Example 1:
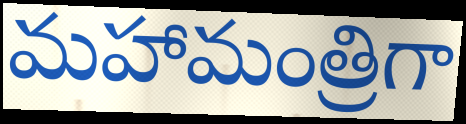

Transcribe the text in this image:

మహామంత్రిగా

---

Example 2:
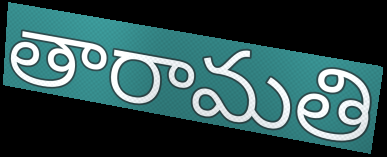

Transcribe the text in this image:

తారామతి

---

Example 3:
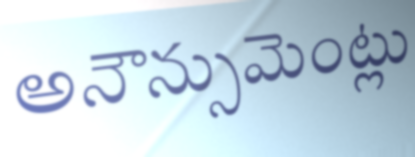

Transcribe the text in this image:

అనౌన్సుమెంట్లు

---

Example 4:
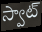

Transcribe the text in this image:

స్వాట్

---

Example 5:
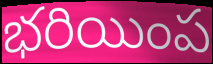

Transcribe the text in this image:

భరియింప